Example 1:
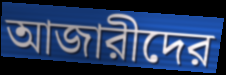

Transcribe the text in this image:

আজারীদের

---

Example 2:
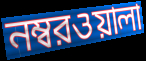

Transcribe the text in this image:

নম্বরওয়ালা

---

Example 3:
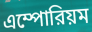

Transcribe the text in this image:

এম্পোরিয়ম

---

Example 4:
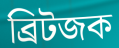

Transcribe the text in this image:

ব্রিটজক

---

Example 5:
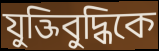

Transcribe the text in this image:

যুক্তিবুদ্ধিকে